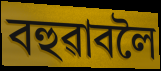
বহুৱাবলৈ